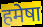
हमेषा